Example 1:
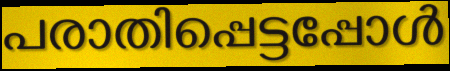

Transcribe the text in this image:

പരാതിപ്പെട്ടപ്പോൾ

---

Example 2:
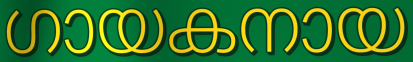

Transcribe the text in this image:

ഗായകനായ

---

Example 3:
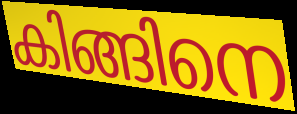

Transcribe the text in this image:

കിങ്ങിനെ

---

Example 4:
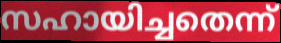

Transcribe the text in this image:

സഹായിച്ചതെന്ന്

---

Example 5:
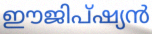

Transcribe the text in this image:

ഈജിപ്ഷ്യൻ